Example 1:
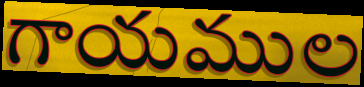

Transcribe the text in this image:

గాయముల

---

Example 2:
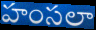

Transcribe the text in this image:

హంసలా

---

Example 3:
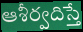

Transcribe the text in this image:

ఆశీర్వదిస్తే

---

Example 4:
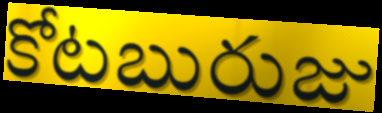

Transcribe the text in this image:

కోటబురుజు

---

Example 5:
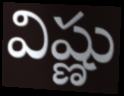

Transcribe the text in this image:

విష్ణు